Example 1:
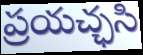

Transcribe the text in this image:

ప్రయచ్ఛసి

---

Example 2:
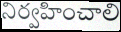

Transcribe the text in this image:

నిర్వహించాలి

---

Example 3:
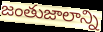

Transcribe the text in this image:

జంతుజాలాన్ని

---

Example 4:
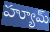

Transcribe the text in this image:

హ్యూమ్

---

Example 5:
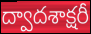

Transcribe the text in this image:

ద్వాదశాక్షరీ